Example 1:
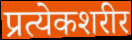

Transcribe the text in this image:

प्रत्येकशरीर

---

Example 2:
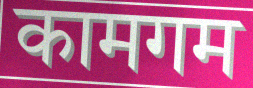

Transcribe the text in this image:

कामगम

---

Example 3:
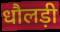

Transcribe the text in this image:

धौलड़ी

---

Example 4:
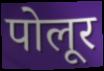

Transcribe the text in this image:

पोलूर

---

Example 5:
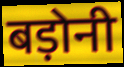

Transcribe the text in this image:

बड़ोनी